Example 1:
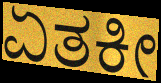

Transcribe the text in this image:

ಏತಕೀ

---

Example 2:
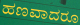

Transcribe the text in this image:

ಹಣವಾದರೂ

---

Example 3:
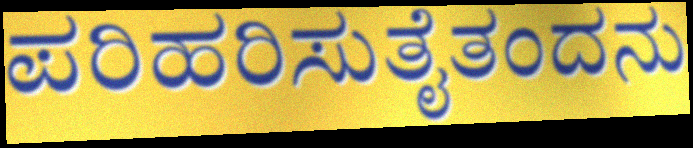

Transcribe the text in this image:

ಪರಿಹರಿಸುತೈತಂದನು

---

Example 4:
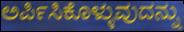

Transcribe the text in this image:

ಅರ್ಪಿಸಿಕೊಳ್ಳುವುದನ್ನು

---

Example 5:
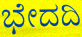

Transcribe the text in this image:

ಭೇದದಿ